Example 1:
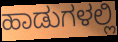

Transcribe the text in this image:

ಹಾಡುಗಳಲ್ಲಿ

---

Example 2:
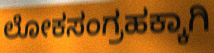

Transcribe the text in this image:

ಲೋಕಸಂಗ್ರಹಕ್ಕಾಗಿ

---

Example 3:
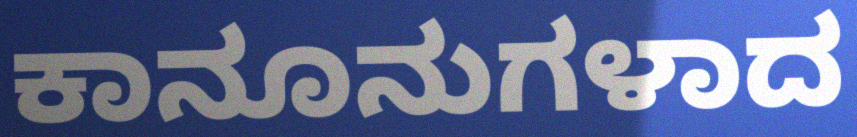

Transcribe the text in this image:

ಕಾನೂನುಗಳಾದ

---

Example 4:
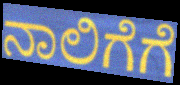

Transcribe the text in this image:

ನಾಲಿಗೆಗೆ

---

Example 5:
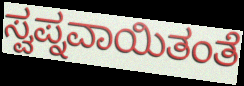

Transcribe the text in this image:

ಸ್ವಪ್ನವಾಯಿತಂತೆ